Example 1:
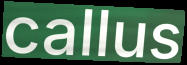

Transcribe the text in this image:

callus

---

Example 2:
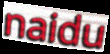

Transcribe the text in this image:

naidu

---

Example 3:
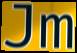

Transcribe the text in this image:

Jm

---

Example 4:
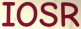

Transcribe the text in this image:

IOSR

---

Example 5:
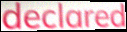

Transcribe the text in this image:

declared